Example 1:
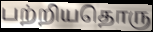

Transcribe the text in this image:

பற்றியதொரு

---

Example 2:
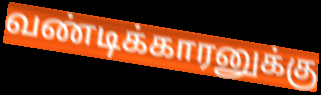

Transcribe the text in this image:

வண்டிக்காரனுக்கு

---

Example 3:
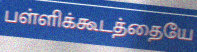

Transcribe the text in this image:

பள்ளிக்கூடத்தையே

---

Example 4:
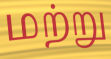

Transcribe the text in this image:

மற்று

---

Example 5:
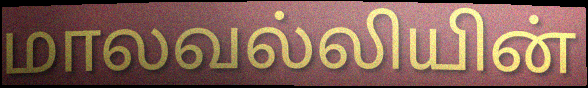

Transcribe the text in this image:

மாலவல்லியின்